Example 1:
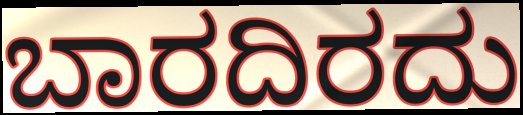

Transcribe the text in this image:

ಬಾರದಿರದು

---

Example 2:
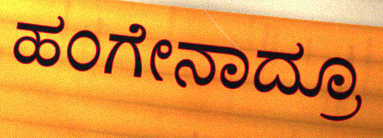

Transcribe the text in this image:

ಹಂಗೇನಾದ್ರೂ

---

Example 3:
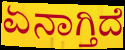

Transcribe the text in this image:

ಏನಾಗ್ತಿದೆ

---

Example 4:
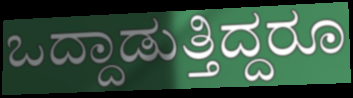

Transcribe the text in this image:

ಒದ್ದಾಡುತ್ತಿದ್ದರೂ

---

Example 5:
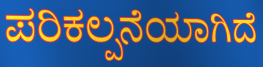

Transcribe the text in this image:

ಪರಿಕಲ್ಪನೆಯಾಗಿದೆ